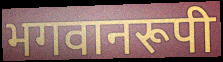
भगवानरूपी